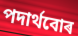
পদাৰ্থবোৰ